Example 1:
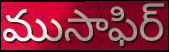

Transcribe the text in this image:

ముసాఫిర్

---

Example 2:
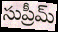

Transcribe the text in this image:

సుప్రీమ్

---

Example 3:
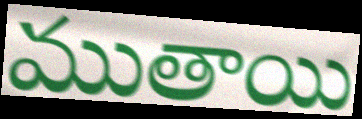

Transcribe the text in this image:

ముతాయి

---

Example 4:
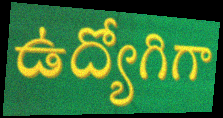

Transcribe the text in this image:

ఉద్యోగిగా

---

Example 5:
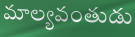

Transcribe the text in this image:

మాల్యవంతుడు